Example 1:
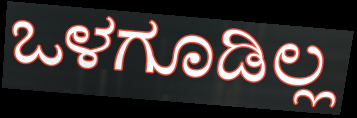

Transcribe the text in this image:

ಒಳಗೂಡಿಲ್ಲ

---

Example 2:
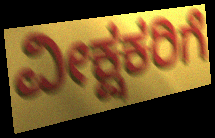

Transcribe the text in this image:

ವೀಕ್ಷಕರಿಗೆ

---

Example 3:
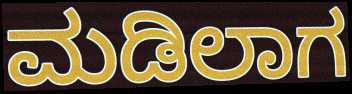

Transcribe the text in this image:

ಮಡಿಲಾಗ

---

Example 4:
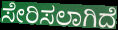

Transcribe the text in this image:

ಸೇರಿಸಲಾಗಿದೆ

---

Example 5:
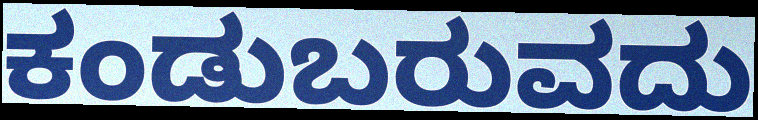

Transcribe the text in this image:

ಕಂಡುಬರುವದು